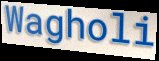
Wagholi